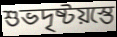
শুভদৃষ্টয়স্তে